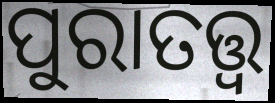
ପୁରାତତ୍ତ୍ୱ